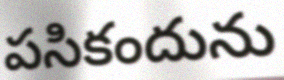
పసికందును